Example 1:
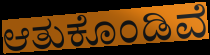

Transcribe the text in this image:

ಆತುಕೊಂಡಿವೆ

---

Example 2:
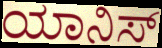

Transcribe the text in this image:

ಯಾನಿಸ್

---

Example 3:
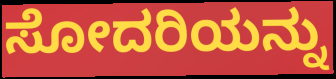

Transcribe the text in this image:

ಸೋದರಿಯನ್ನು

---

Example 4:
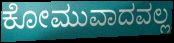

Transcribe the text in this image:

ಕೋಮುವಾದವಲ್ಲ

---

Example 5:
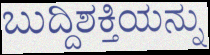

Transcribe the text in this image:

ಬುದ್ದಿಶಕ್ತಿಯನ್ನು